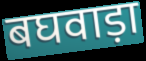
बघवाड़ा